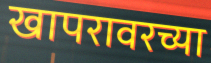
खापरावरच्या